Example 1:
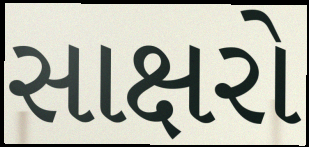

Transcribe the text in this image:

સાક્ષરો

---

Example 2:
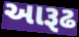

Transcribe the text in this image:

આરૂઢ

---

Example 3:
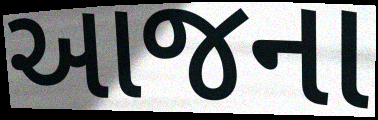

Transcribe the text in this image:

આજના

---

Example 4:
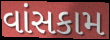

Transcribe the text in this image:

વાંસકામ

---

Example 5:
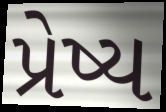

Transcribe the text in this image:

પ્રેષ્ય